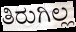
ತಿರುಗಿಲ್ಲ